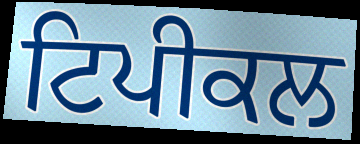
ਟਿਪੀਕਲ